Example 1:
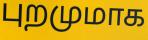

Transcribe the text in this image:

புறமுமாக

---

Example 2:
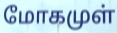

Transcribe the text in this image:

மோகமுள்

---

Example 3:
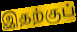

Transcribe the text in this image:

இதற்குப்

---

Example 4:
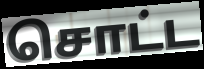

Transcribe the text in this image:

சொட்ட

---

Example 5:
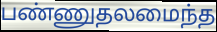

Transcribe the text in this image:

பண்ணுதலமைந்த